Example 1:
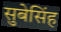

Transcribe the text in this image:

सुबेसिंह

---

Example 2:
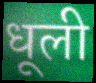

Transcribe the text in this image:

धूली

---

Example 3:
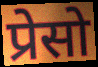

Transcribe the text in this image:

प्रेसो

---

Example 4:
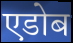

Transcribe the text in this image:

एडोब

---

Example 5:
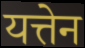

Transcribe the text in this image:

यत्तेन